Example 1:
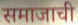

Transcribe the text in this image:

समाजाची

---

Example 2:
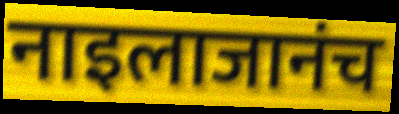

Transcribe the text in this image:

नाइलाजानंच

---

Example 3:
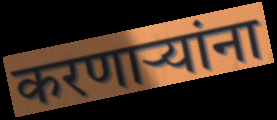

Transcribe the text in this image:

करणाऱ्यांना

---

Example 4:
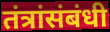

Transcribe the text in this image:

तंत्रांसंबंधी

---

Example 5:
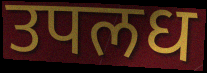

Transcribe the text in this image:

उपलध